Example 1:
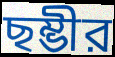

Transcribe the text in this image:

ছম্ভীর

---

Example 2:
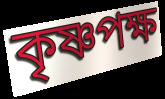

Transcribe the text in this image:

কৃষ্ণপক্ষ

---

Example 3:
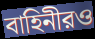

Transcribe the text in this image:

বাহিনীরও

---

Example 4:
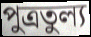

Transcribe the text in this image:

পুত্রতুল্য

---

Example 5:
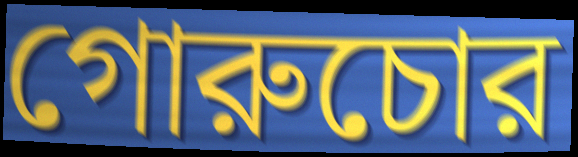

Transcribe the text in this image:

গোরুচোর